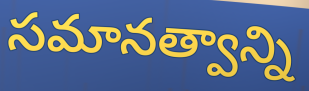
సమానత్వాన్ని